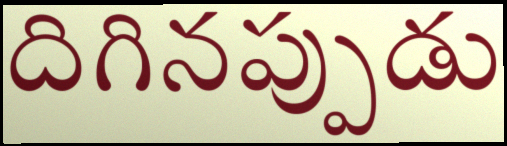
దిగినప్పుడు